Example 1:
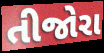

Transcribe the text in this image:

તીજોરા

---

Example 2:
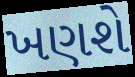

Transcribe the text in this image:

ખણશે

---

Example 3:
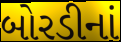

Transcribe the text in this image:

બોરડીનાં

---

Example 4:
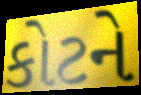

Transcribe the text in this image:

કોટને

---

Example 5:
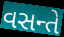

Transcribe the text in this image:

વસન્તે